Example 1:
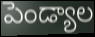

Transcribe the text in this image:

పెండ్యాల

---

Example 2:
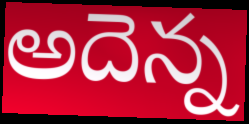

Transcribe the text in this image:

అదెన్న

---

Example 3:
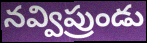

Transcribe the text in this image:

నవ్విప్రుండు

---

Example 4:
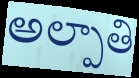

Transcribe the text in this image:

అల్పాతి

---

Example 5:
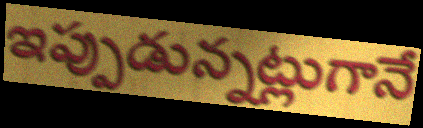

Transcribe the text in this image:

ఇప్పుడున్నట్లుగానే